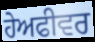
ਹੇਅਫੀਵਰ